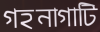
গহনাগাটি